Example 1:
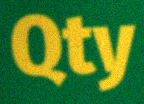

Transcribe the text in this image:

Qty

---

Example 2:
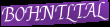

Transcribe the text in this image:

BOHNTLTAL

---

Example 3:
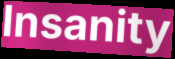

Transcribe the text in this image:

Insanity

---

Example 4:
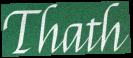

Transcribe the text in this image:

Thath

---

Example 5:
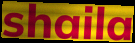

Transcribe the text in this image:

shaila